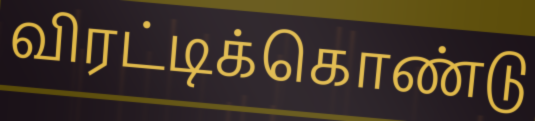
விரட்டிக்கொண்டு